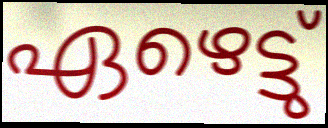
ഏഴെട്ടു്